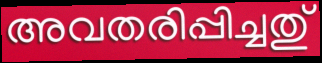
അവതരിപ്പിച്ചതു്